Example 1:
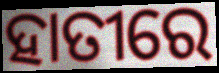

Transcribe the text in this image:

ହାତୀରେ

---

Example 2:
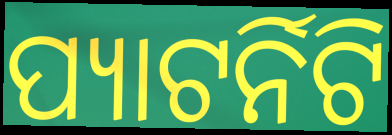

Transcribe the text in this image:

ପ୍ୟାଟର୍ନିଟି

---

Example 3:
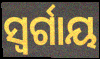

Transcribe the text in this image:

ସ୍ବର୍ଗାୟ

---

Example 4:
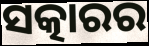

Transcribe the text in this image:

ସତ୍କାରର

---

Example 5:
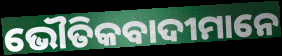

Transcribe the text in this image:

ଭୌତିକବାଦୀମାନେ